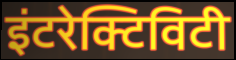
इंटरेक्टिविटी